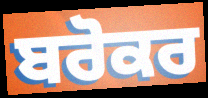
ਬਰੋਕਰ